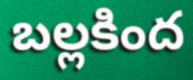
బల్లకింద